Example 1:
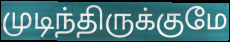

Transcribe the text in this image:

முடிந்திருக்குமே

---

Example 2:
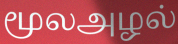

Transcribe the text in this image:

மூலஅழல்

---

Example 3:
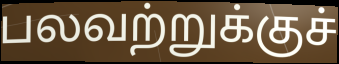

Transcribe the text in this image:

பலவற்றுக்குச்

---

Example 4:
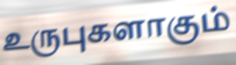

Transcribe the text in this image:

உருபுகளாகும்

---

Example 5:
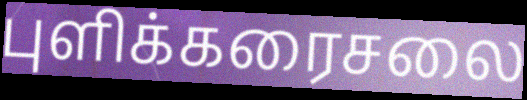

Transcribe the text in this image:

புளிக்கரைசலை